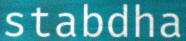
stabdha